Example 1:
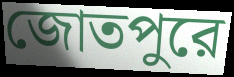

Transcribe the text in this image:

জোতপুরে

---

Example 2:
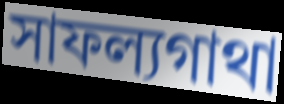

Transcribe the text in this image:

সাফল্যগাথা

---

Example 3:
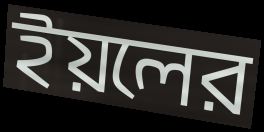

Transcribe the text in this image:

ইয়লের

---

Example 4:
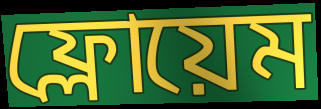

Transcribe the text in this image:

ফ্লোয়েম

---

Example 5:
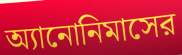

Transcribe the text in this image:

অ্যানোনিমাসের